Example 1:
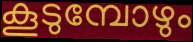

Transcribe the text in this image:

കൂടുമ്പോഴും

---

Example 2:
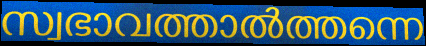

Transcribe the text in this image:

സ്വഭാവത്താൽത്തന്നെ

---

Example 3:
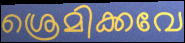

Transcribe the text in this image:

ശ്രെമിക്കവേ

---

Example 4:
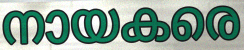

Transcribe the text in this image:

നായകരെ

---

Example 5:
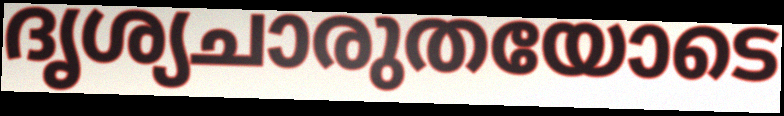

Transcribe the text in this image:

ദൃശ്യചാരുതയോടെ